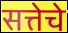
सत्तेचे